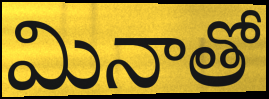
మినాతో